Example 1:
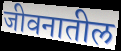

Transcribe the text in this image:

जीवनातील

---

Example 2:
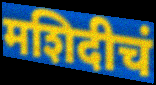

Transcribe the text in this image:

मशिदीचं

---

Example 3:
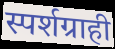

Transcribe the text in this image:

स्पर्शग्राही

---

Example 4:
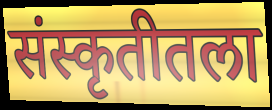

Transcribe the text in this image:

संस्कृतीतला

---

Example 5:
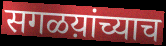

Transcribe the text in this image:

सगळय़ांच्याच